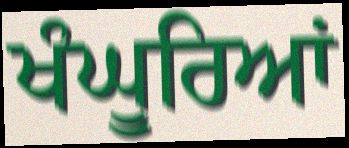
ਖੰਘੂਰਿਆਂ